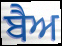
ਬੈਅ